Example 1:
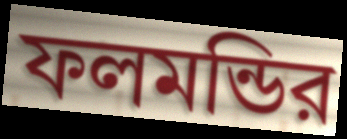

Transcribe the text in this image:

ফলমন্ডির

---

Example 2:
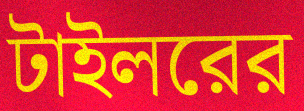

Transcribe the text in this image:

টাইলরের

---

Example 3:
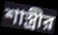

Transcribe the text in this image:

শাস্ত্রীর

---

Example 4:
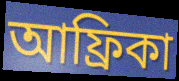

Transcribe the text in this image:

আফ্রিকা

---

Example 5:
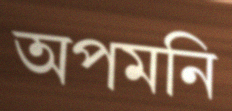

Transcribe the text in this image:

অপমনি